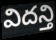
విదన్తి